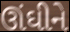
ઊંઘીને